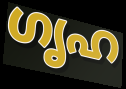
ഗൃഹ